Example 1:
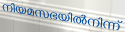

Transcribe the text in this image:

നിയമസഭയിൽനിന്ന്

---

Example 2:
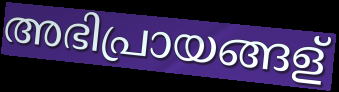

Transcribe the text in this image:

അഭിപ്രായങ്ങള്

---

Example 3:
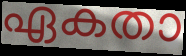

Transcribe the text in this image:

ഏകതാ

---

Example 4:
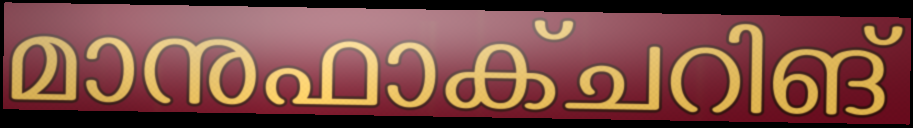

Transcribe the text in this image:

മാനുഫാക്ചറിങ്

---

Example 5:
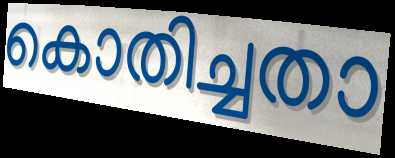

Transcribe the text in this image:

കൊതിച്ചതാ